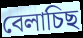
বেলাচিছ